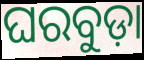
ଘରବୁଡ଼ା